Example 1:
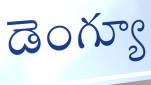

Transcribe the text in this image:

డెంగ్యూ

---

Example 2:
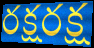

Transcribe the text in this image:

రక్షరక్ష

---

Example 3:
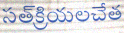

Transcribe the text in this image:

సత్‌క్రియలచేత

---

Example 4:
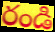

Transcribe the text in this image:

రండి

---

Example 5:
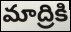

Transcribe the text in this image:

మాద్రికి